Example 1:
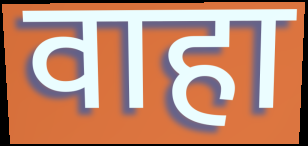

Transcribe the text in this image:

वाहा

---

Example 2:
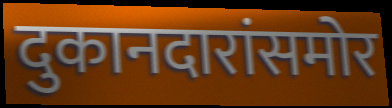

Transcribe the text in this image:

दुकानदारांसमोर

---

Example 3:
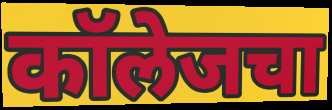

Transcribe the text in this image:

कॉलेजचा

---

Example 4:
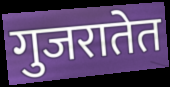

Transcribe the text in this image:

गुजरातेत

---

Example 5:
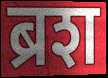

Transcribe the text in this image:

ब्रश